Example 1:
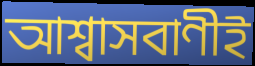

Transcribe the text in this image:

আশ্বাসবাণীই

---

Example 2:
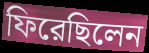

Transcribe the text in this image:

ফিরেছিলেন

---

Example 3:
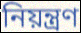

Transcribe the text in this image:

নিয়ন্ত্রণ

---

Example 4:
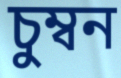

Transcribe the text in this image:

চুম্বন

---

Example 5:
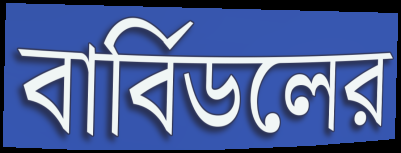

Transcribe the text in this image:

বার্বিডলের